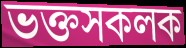
ভক্তসকলক